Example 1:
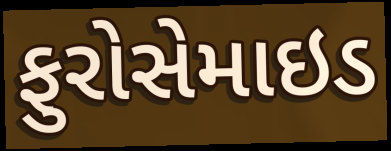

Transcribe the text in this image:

ફુરોસેમાઇડ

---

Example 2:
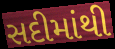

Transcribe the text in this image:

સદીમાંથી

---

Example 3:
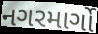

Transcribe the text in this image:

નગરમાર્ગો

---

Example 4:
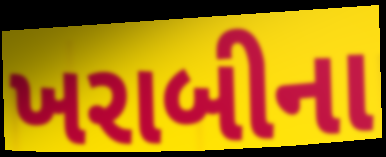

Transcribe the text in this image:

ખરાબીના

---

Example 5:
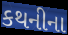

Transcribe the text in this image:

કથનીના